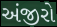
અંજીરો